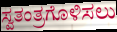
ಸ್ವತಂತ್ರಗೊಳಿಸಲು